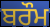
ਬਰੌਮ